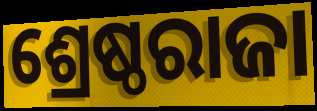
ଶ୍ରେଷ୍ଠରାଜା